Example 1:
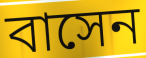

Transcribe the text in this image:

বাসেন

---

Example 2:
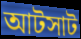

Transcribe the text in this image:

আটসাট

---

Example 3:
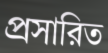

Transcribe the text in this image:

প্রসারিত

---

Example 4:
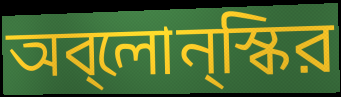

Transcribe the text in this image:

অব্‌লোন্‌স্কির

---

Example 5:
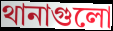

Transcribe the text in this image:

থানাগুলো